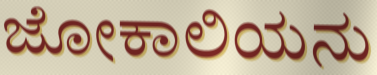
ಜೋಕಾಲಿಯನು